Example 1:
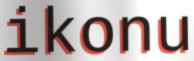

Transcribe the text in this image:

ikonu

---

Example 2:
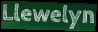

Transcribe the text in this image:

Llewelyn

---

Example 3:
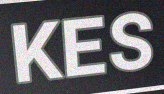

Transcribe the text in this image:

KES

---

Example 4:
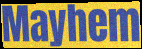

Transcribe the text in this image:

Mayhem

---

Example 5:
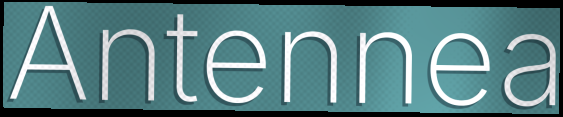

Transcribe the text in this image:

Antennea